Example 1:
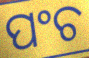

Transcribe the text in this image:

ପଂଚ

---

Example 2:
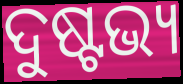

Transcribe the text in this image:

ଦୁଷ୍ଟଭ୍ୟ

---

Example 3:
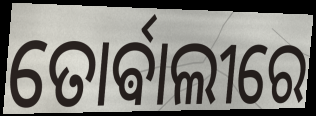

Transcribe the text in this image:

ତୋର୍ଵାଲୀରେ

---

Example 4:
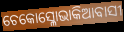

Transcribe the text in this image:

ଚେକୋସ୍ଳୋଭାକିଆବାସୀ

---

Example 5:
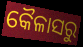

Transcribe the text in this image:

କୈଳାସରୁ